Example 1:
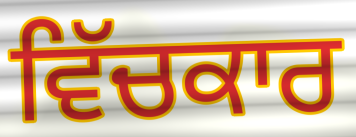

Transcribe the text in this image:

ਵਿੱਚਕਾਰ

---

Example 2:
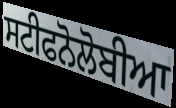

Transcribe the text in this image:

ਸਟੀਫਨੋਲੋਬੀਆ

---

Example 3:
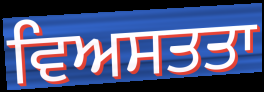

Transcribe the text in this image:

ਵਿਅਸਤਤਾ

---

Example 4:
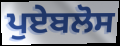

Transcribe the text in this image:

ਪੁਏਬਲੋਸ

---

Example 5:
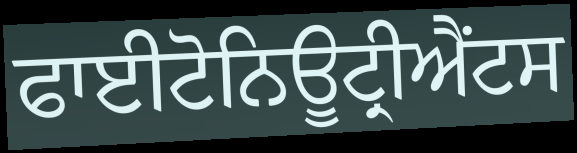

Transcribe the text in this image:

ਫਾਈਟੋਨਿਊਟ੍ਰੀਐਂਟਸ